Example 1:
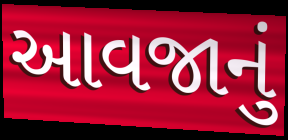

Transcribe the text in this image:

આવજાનું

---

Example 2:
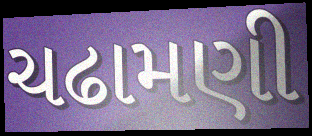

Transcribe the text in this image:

ચઢામણી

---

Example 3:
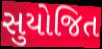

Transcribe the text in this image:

સુયોજિત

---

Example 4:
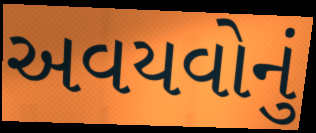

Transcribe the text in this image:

અવયવોનું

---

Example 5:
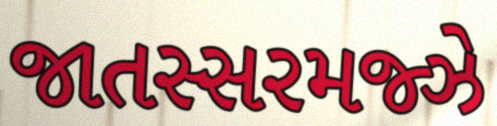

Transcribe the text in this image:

જાતસ્સરમજ્ઝે